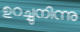
ഉറച്ചുനിന്നു